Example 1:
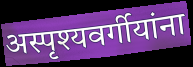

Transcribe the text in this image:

अस्पृश्यवर्गीयांना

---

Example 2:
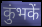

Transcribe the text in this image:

कुंभकें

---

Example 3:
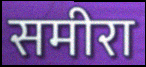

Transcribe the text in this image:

समीरा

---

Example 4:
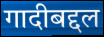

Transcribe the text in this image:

गादीबद्दल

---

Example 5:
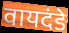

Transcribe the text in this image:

वायदंडे